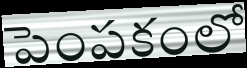
పెంపకంలో